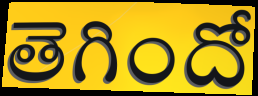
తెగిందో